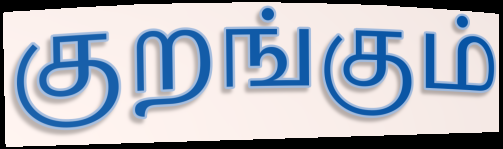
குறங்கும்